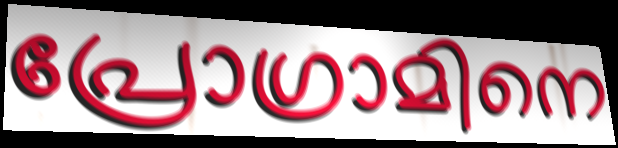
പ്രോഗ്രാമിനെ